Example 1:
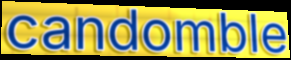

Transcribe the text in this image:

candomble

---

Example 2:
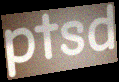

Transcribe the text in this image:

ptsd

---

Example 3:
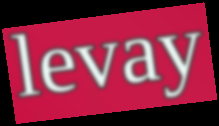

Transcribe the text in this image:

levay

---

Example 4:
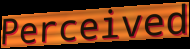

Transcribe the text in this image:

Perceived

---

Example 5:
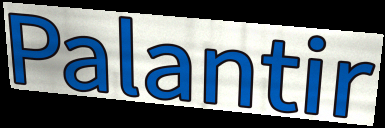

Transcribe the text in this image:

Palantir